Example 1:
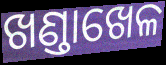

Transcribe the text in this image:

ଖଣ୍ଡାଖେଳ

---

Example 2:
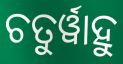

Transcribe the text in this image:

ଚତୁର୍ୱାହୁ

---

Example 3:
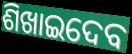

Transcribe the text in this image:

ଶିଖାଇଦେବ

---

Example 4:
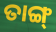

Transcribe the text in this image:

ତାଙ୍ଗ୍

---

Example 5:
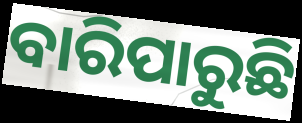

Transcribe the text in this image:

ବାରିପାରୁଛି